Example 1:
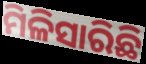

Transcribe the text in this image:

ମିଳିସାରିଛି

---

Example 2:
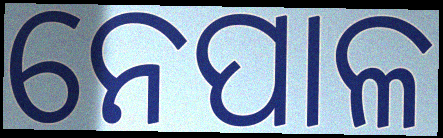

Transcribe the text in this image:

ନେପାଳ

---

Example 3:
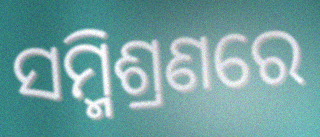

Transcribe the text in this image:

ସମ୍ମିଶ୍ରଣରେ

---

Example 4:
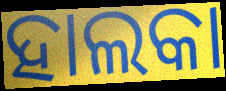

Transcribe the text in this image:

ହାଲକା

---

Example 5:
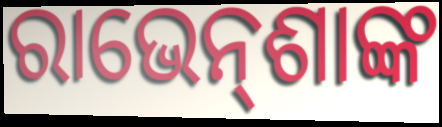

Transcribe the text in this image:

ରାଭେନ୍‌ଶାଙ୍କ